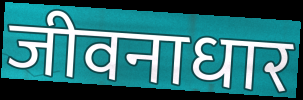
जीवनाधार